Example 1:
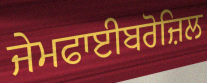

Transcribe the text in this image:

ਜੇਮਫਾਈਬਰੋਜ਼ਿਲ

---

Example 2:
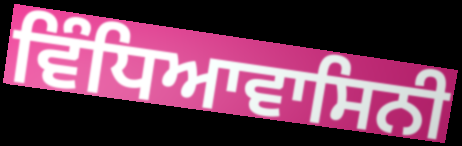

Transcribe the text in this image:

ਵਿੰਧਿਆਵਾਸਿਨੀ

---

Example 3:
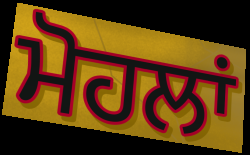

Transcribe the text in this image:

ਮੋਹਲਾਂ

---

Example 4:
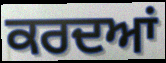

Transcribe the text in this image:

ਕਰਦਆਂ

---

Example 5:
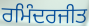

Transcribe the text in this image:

ਰਮਿੰਦਰਜੀਤ